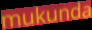
mukunda